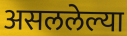
असललेल्या